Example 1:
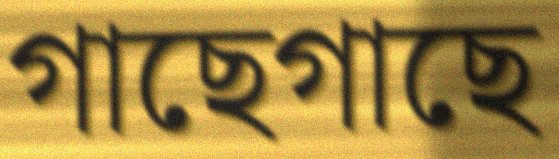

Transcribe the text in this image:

গাছেগাছে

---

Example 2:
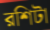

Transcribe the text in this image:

রশিটা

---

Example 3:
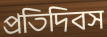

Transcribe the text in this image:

প্রতিদিবস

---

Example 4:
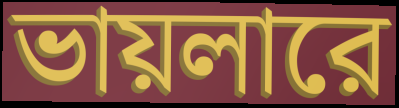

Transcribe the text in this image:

ভায়লারে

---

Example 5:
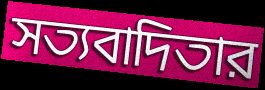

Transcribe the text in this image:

সত্যবাদিতার